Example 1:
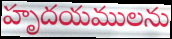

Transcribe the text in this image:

హృదయములను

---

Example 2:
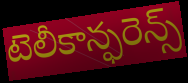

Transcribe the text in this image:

టెలీకాన్ఫరెన్స్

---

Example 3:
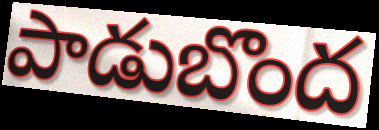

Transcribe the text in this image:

పాడుబొంద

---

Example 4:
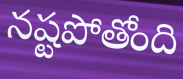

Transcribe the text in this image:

నష్టపోతోంది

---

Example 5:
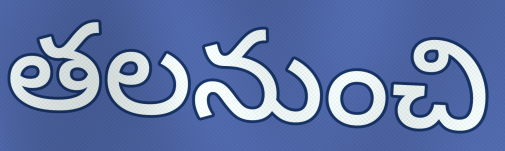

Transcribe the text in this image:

తలనుంచి